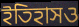
ইতিহাসও